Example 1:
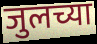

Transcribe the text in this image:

जुलच्या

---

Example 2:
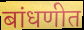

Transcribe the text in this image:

बांधणीत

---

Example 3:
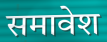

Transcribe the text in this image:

समावेश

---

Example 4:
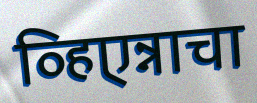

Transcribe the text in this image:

व्हिएन्नाचा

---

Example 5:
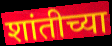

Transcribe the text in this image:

शांतीच्या